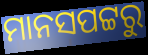
ମାନସପଟ୍ଟରୁ